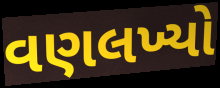
વણલખ્યો